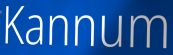
Kannum